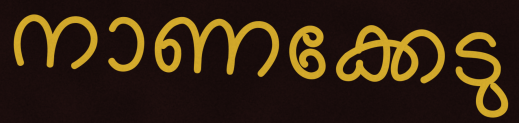
നാണക്കേടു